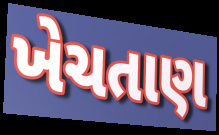
ખેચતાણ